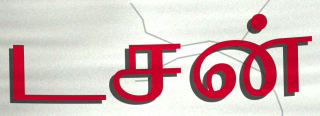
டசன்